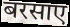
बरसाए